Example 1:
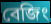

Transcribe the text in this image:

বেজিং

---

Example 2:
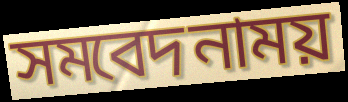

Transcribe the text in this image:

সমবেদনাময়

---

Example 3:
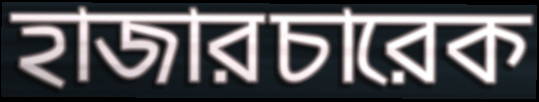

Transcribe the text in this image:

হাজারচারেক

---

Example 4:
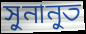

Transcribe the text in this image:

সুনানুত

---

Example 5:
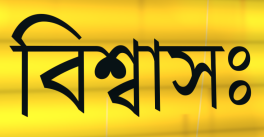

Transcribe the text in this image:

বিশ্বাসঃ